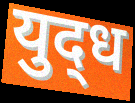
युद्‍ध